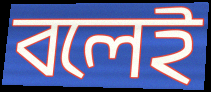
বলেই